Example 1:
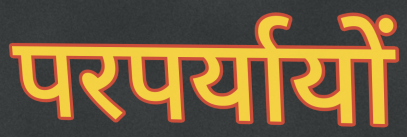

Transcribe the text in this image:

परपर्यायों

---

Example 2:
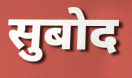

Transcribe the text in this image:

सुबोद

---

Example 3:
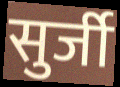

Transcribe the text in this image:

सुर्जी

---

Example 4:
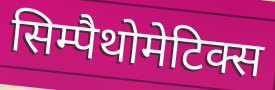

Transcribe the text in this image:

सिम्पैथोमेटिक्स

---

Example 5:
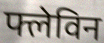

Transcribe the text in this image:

फ्लेविन